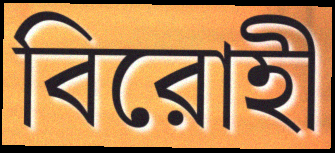
বিরোহী